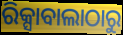
ରିକ୍ସାବାଲାଠାରୁ